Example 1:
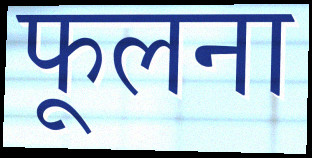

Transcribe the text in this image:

फूलना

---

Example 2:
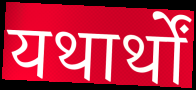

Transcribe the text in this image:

यथार्थों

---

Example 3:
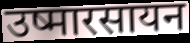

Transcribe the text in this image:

उष्मारसायन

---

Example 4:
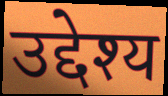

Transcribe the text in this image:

उद्देश्य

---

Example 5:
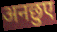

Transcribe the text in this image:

अनछुए